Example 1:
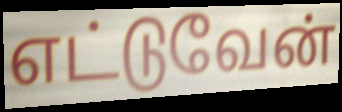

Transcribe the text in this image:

எட்டுவேன்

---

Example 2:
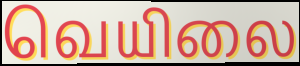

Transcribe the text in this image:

வெயிலை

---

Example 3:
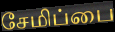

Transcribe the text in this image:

சேமிப்பை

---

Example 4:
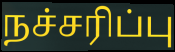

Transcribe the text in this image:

நச்சரிப்பு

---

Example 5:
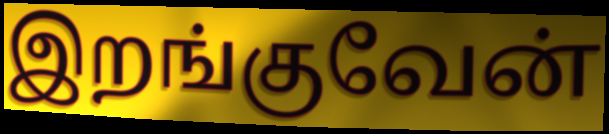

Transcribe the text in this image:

இறங்குவேன்